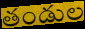
తండుల